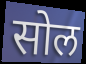
सोल